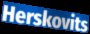
Herskovits